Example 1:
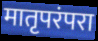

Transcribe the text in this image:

मातृपरंपरा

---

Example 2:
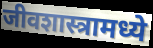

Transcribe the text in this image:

जीवशास्त्रामध्ये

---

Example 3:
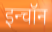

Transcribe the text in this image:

इन्चॉन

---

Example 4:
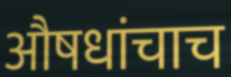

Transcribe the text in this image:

औषधांचाच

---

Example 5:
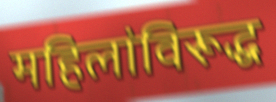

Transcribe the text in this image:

महिलांविरूद्ध